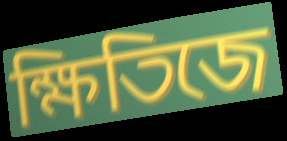
ক্ষিতিজে